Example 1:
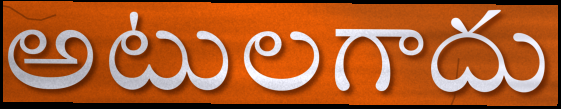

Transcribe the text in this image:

అటులగాదు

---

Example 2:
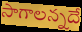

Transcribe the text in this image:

సాగాలన్నదే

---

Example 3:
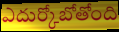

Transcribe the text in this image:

ఎదుర్కోబోతోంది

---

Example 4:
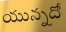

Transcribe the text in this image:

యున్నదో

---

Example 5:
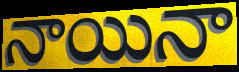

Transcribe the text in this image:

నాయినా